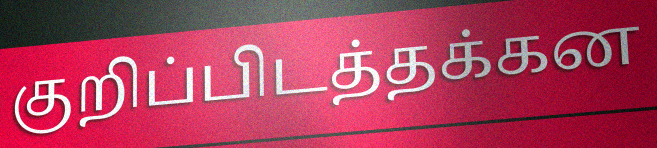
குறிப்பிடத்தக்கன